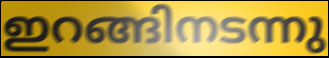
ഇറങ്ങിനടന്നു